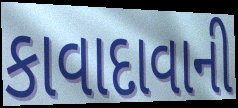
કાવાદાવાની